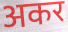
अकर